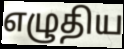
எழுதிய